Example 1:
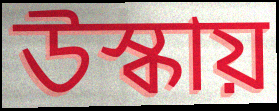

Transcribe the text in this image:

উস্কায়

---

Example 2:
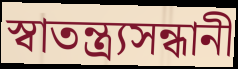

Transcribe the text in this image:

স্বাতন্ত্র্যসন্ধানী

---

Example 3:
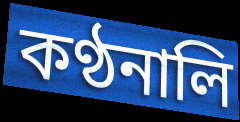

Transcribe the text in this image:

কণ্ঠনালি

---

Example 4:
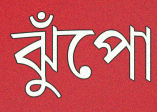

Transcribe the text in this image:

ঝুঁপো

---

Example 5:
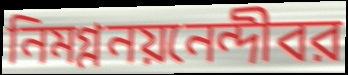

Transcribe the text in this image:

নিমগ্ননয়নেন্দীবর